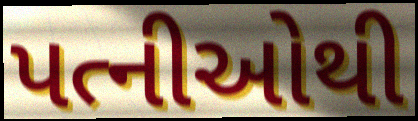
પત્નીઓથી